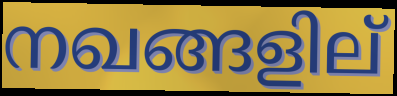
നഖങ്ങളില്